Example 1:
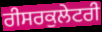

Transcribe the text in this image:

ਰੀਸਰਕੁਲੇਟਰੀ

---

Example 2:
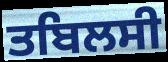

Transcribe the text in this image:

ਤਬਿਲਸੀ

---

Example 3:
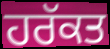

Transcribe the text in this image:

ਹਰੱਕਤ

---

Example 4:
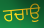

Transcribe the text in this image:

ਰਚਾਉ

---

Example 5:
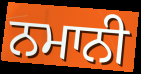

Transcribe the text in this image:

ਨਮਾਨੀ